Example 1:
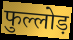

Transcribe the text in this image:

फुल्लोड़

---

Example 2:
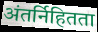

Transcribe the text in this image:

अंतर्निहितता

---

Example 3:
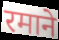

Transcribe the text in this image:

रमाने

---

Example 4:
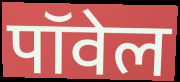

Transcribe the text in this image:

पॉवेल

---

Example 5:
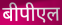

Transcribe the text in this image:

बीपीएल